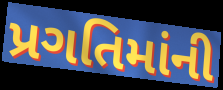
પ્રગતિમાંની